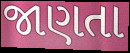
જાણતા